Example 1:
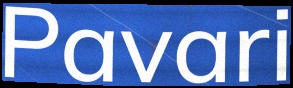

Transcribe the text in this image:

Pavari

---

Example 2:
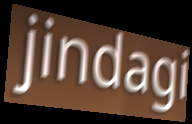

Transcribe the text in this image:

jindagi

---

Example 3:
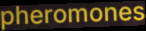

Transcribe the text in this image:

pheromones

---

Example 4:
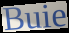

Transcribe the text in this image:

Buie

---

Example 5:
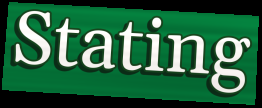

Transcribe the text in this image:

Stating